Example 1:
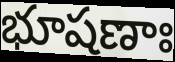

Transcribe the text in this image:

భూషణాః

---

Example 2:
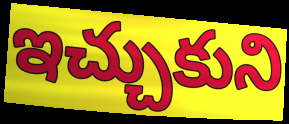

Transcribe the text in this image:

ఇచ్చుకుని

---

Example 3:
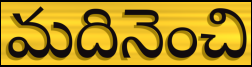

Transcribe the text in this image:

మదినెంచి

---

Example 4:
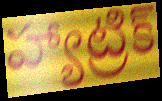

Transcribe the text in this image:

హ్యాట్రిక్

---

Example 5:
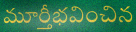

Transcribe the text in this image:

మూర్తీభవించిన